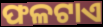
ଫଳଟାଏ